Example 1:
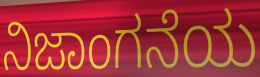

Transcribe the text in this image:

ನಿಜಾಂಗನೆಯ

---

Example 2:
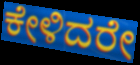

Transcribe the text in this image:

ಕೇಳಿದರೇ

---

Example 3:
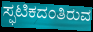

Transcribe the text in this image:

ಸ್ಫಟಿಕದಂತಿರುವ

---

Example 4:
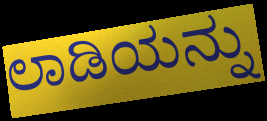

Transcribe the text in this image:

ಲಾಡಿಯನ್ನು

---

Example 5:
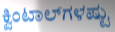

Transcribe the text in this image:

ಕ್ವಿಂಟಾಲ್‌ಗಳಷ್ಟು